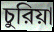
চুরিয়া